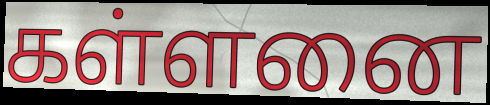
கள்ளனை